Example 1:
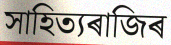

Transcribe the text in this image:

সাহিত্যৰাজিৰ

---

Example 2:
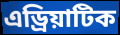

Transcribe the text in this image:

এড্ৰিয়াটিক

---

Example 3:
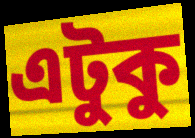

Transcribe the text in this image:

এটুকু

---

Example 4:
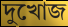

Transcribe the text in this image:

দুখোজ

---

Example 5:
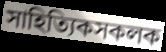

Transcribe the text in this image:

সাহিত্যিকসকলক